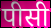
पीसी